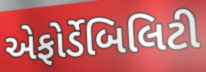
એફોર્ડેબિલિટી